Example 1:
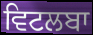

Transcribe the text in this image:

ਵਿਟਲਬਾ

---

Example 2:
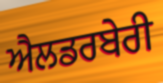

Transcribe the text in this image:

ਐਲਡਰਬੇਰੀ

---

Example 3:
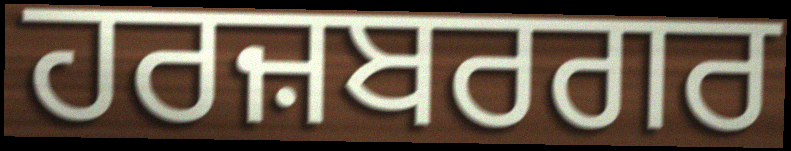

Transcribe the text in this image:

ਹਰਜ਼ਬਰਗਰ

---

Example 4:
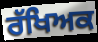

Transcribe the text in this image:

ਰੱਖਿਅਕ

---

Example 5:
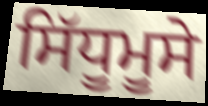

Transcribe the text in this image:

ਸਿੱਧੂਮੂਸੇ